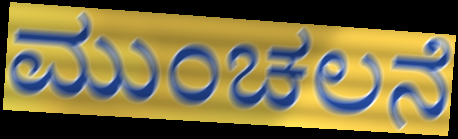
ಮುಂಚಲನೆ